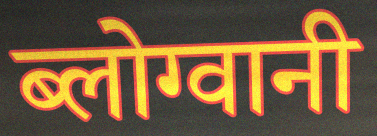
ब्लोग्वानी